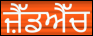
ਜ਼ੈੱਡਐੱਚ